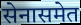
सेनासमेत